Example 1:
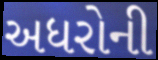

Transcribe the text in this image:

અધરોની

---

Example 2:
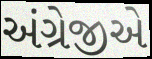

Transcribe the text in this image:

અંગ્રેજીએ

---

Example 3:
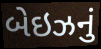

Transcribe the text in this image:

બેઇઝનું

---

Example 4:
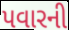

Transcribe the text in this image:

પવારની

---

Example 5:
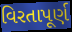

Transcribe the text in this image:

વિરતાપૂર્ણ